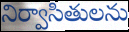
నిర్వాసితులను